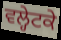
ਵਲ੍ਹੇਟਕੇ